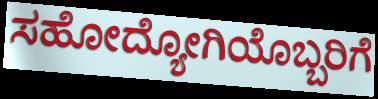
ಸಹೋದ್ಯೋಗಿಯೊಬ್ಬರಿಗೆ